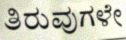
ತಿರುವುಗಳೇ